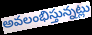
అవలంభిస్తున్నట్లు